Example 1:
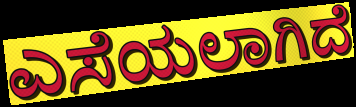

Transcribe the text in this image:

ಎಸೆಯಲಾಗಿದೆ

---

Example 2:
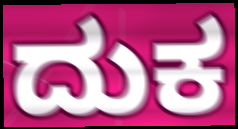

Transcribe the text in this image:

ದುಕ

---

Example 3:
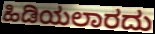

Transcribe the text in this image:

ಹಿಡಿಯಲಾರದು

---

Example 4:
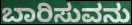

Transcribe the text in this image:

ಬಾರಿಸುವನು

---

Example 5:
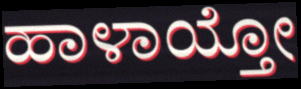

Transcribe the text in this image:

ಹಾಳಾಯ್ತೋ